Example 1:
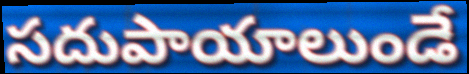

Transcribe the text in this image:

సదుపాయాలుండే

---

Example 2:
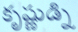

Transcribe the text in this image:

కృష్ణుడ్ని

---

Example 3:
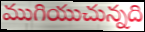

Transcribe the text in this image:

ముగియుచున్నది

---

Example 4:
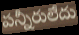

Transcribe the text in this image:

పన్నీరులేదు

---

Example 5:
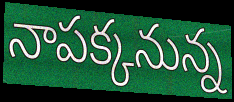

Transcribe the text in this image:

నాపక్కనున్న